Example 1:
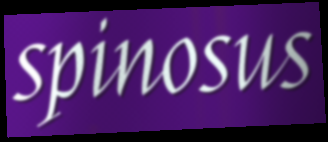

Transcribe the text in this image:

spinosus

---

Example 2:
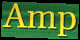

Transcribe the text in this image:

Amp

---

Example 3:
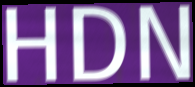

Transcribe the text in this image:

HDN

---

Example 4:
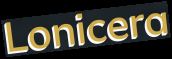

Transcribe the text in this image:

Lonicera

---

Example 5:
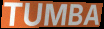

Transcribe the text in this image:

TUMBA